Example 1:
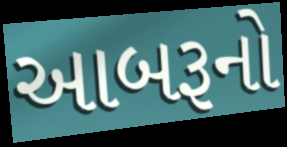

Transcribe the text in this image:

આબરૂનો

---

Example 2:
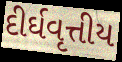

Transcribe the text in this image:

દીર્ઘવૃત્તીય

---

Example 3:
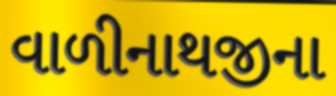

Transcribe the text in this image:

વાળીનાથજીના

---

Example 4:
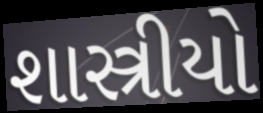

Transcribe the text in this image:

શાસ્ત્રીયો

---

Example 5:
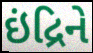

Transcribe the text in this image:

ઇંદ્રિને